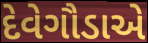
દેવેગૌડાએ